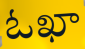
ఓఖా